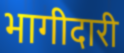
भागीदारी